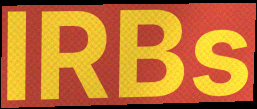
IRBs